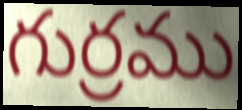
గుర్రము